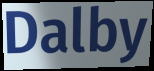
Dalby